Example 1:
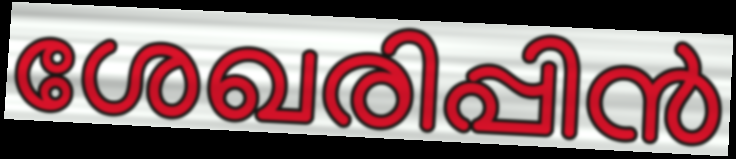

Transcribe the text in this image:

ശേഖരിപ്പിൻ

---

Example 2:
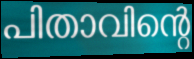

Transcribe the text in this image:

പിതാവിന്റെ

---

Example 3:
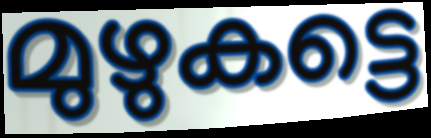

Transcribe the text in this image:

മുഴുകട്ടെ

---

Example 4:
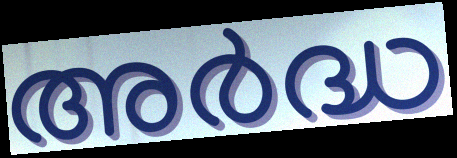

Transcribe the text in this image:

അർദ്ധ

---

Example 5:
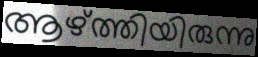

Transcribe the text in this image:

ആഴ്ത്തിയിരുന്നു